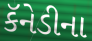
કૅનેડીના